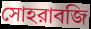
সোহরাবজি